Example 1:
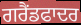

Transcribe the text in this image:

ਗਰੈਂਡਫਾਦਰ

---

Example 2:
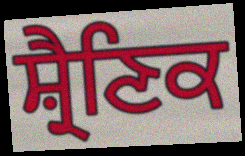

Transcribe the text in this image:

ਸ਼੍ਰੈਣਿਕ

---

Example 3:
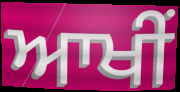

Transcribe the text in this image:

ਆਖੀਂ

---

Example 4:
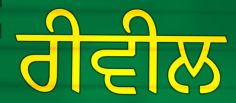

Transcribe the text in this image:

ਰੀਵੀਲ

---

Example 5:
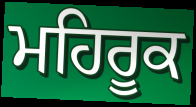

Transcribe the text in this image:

ਮਹਿਰੂਕ